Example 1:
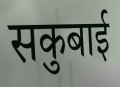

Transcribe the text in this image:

सकुबाई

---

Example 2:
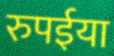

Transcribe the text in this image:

रुपईया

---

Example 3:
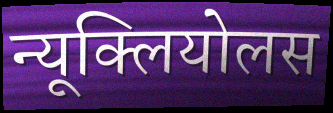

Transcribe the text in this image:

न्यूक्लियोलस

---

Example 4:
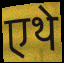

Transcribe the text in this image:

एथे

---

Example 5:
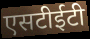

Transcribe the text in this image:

एसटीईटी